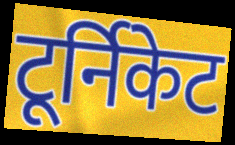
टूर्निकेट